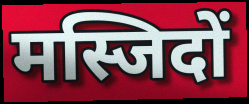
मस्जिदों